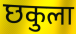
छकुला